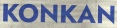
KONKAN